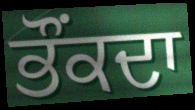
ਭੌਂਕਦਾ